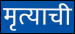
मृत्याची